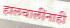
हालचालींनाही